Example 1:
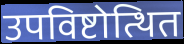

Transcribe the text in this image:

उपविष्टोत्थित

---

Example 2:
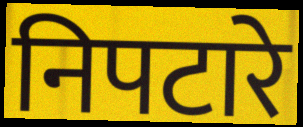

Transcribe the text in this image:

निपटारे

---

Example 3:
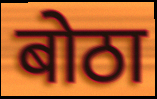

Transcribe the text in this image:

बोठा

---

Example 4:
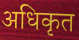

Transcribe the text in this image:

अधिकृत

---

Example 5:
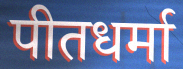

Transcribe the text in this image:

पीतधर्मा